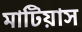
মাটিয়াস